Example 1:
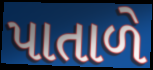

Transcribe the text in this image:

પાતાળે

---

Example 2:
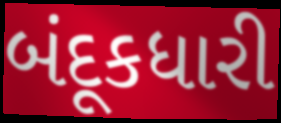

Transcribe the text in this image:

બંદૂકધારી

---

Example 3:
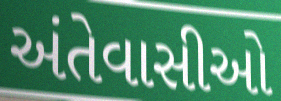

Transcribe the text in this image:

અંતેવાસીઓ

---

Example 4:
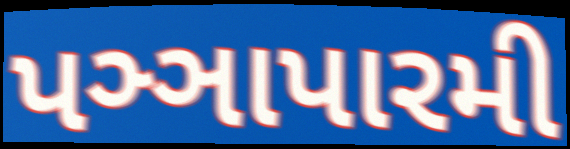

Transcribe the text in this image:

પઞ્ઞાપારમી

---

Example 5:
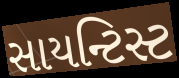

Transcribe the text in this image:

સાયન્ટિસ્ટ